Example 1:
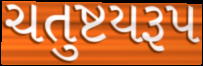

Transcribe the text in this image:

ચતુષ્ટયરૂપ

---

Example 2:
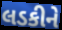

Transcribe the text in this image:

લડકીને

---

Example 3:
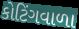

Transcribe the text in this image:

કોટિંગવાળા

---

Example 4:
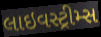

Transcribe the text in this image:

લાઇવસ્ટ્રીમ્સ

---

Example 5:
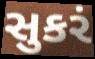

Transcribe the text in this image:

સુકરં